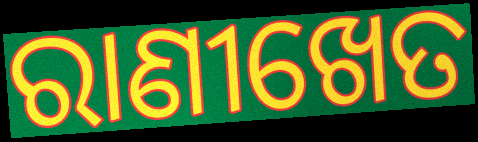
ରାଣୀଖେତ